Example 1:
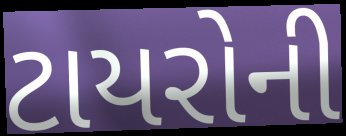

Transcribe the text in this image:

ટાયરોની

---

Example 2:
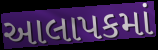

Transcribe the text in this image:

આલાપકમાં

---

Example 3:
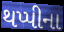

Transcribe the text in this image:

થપ્પીના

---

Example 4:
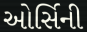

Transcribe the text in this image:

ઓર્સિની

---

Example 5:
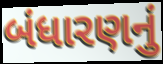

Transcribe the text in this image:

બંધારણનું